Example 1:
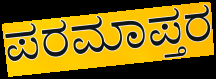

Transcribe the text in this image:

ಪರಮಾಪ್ತರ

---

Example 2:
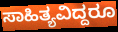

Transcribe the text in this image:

ಸಾಹಿತ್ಯವಿದ್ದರೂ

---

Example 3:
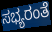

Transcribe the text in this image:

ಸಭ್ಯರಂತೆ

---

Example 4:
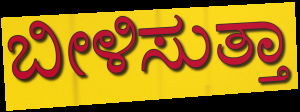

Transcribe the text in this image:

ಬೀಳಿಸುತ್ತಾ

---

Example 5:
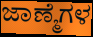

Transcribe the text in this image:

ಜಾಣ್ಮೆಗಳ